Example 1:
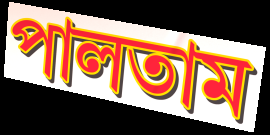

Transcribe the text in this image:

পালতাম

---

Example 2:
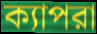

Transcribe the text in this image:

ক্যাপরা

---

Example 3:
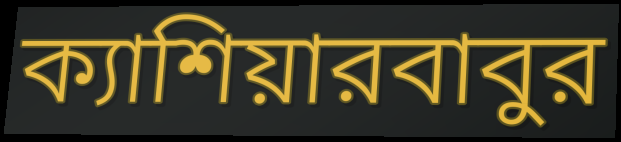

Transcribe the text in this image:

ক্যাশিয়ারবাবুর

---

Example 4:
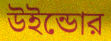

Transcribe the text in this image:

উইন্ডোর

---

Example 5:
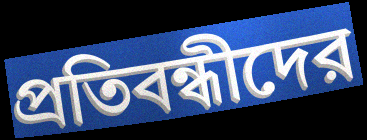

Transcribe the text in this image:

প্রতিবন্ধীদের